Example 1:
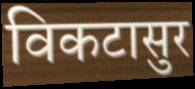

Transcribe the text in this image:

विकटासुर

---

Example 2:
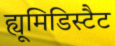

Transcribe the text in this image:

ह्यूमिडिस्टैट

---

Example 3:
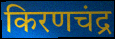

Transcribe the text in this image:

किरणचंद्र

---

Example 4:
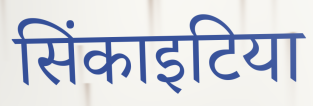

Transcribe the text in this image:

सिंकाइटिया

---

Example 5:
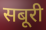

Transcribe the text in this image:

सबूरी